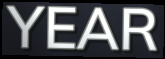
YEAR